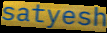
satyesh